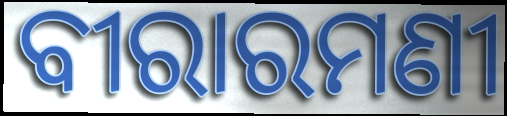
ବୀରାରମଣୀ